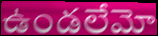
ఉండలేమో